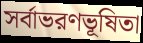
সর্বাভরণভূষিতা